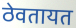
ठेवतायत